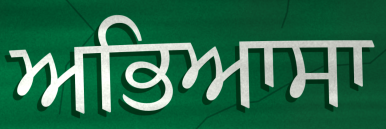
ਅਭਿਆਸਾ